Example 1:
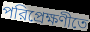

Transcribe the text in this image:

পরিপ্রেক্ষণীতে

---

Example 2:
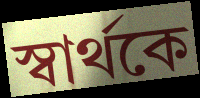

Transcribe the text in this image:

স্বার্থকে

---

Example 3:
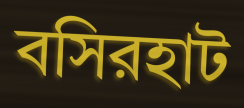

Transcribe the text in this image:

বসিরহাট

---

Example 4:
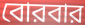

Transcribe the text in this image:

বোরবার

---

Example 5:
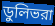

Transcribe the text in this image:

ডুলিভরা